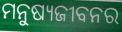
ମନୁଷ୍ୟଜୀବନର